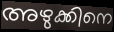
അഴുക്കിനെ